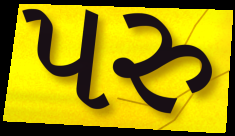
પરુ